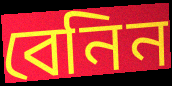
বেনিন